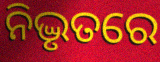
ନିଦ୍ଭୃତରେ